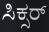
ಸಿಕ್ಸರ್